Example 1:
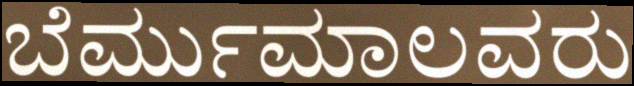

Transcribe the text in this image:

ಬೆರ್ಮುಮಾಲವರು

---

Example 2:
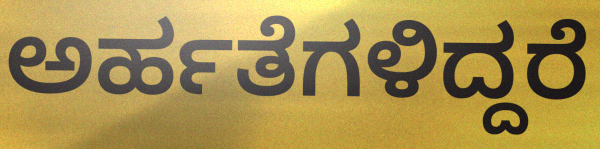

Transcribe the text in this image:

ಅರ್ಹತೆಗಳಿದ್ದರೆ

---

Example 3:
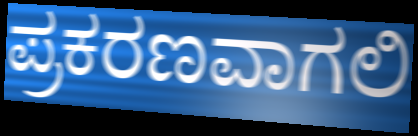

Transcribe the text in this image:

ಪ್ರಕರಣವಾಗಲಿ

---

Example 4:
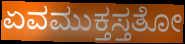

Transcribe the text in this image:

ಏವಮುಕ್ತಸ್ತತೋ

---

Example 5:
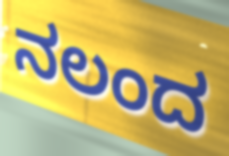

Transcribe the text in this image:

ನಲಂದ